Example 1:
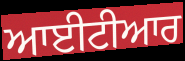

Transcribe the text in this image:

ਆਈਟੀਆਰ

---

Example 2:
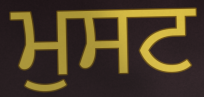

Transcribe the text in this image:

ਮੁਸਟ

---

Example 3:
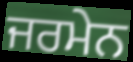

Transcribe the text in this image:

ਜਰਮੇਨ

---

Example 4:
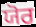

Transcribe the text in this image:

ਯੋਰ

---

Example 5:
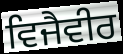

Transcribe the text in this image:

ਵਿਜੈਵੀਰ